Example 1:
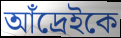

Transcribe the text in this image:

আঁদ্রেইকে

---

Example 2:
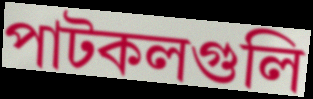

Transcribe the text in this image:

পাটকলগুলি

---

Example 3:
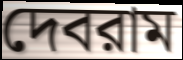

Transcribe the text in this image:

দেবরাম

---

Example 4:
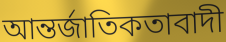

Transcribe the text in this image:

আন্তর্জাতিকতাবাদী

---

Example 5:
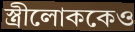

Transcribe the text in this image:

স্ত্রীলোককেও